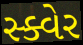
સ્ક્વેર